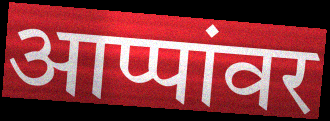
आप्पांवर